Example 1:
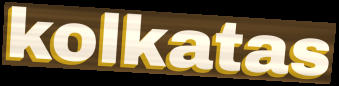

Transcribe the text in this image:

kolkatas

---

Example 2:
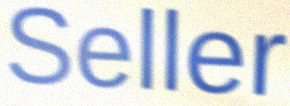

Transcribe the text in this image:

Seller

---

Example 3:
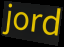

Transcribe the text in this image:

jord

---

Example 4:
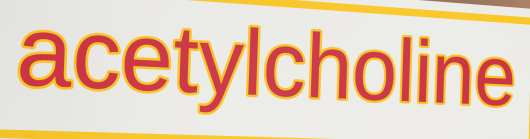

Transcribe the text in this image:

acetylcholine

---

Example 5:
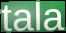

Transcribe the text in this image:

tala